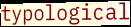
typological